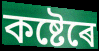
কষ্টেৰে